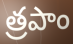
త్రపాం